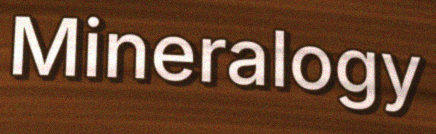
Mineralogy